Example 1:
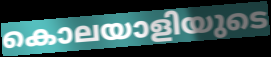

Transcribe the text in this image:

കൊലയാളിയുടെ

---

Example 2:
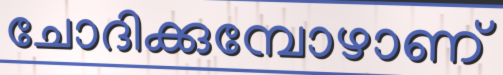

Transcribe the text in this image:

ചോദിക്കുമ്പോഴാണ്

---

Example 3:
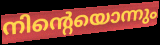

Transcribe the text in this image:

നിന്റെയൊന്നും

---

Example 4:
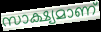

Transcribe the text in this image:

സാക്ഷ്യമാണ്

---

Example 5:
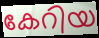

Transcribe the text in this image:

കേറിയ